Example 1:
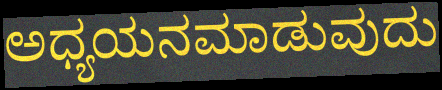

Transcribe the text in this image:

ಅಧ್ಯಯನಮಾಡುವುದು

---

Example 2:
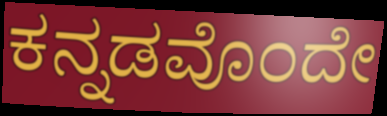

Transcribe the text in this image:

ಕನ್ನಡವೊಂದೇ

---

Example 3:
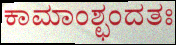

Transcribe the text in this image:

ಕಾಮಾಂಶ್ಛಂದತಃ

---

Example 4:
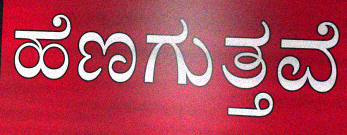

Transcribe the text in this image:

ಹೆಣಗುತ್ತವೆ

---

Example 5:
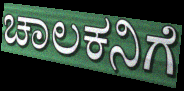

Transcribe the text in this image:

ಚಾಲಕನಿಗೆ